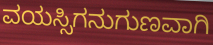
ವಯಸ್ಸಿಗನುಗುಣವಾಗಿ